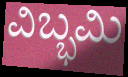
ವಿಬ್ಭಮಿ